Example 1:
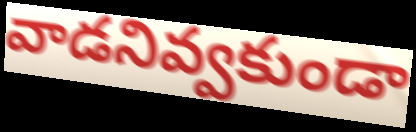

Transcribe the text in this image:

వాడనివ్వకుండా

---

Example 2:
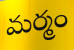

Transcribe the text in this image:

మర్మం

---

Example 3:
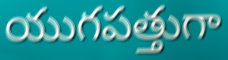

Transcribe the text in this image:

యుగపత్తుగా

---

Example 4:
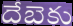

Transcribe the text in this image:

దేబెకు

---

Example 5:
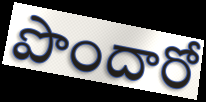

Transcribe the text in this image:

పొందారో